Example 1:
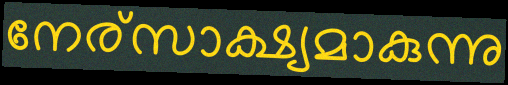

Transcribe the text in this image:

നേര്സാക്ഷ്യമാകുന്നു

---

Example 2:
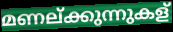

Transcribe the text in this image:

മണല്ക്കുന്നുകള്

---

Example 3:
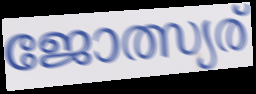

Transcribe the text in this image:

ജോത്സ്യര്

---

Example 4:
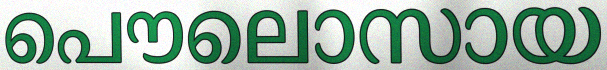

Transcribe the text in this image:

പൌലൊസായ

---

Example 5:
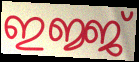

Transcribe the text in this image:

ഇജ്ജ്